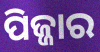
ପିଜ୍ଜାର